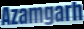
Azamgarh